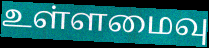
உள்ளமைவு